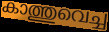
കാത്തുവെച്ച